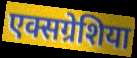
एक्सग्रेशिया